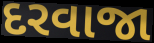
દરવાજા